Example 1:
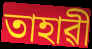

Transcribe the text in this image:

তাহাৱী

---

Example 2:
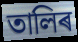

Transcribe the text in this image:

তালিৰ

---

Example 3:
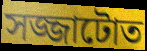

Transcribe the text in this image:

সজ্জাটোত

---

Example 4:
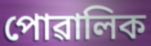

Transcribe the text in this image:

পোৱালিক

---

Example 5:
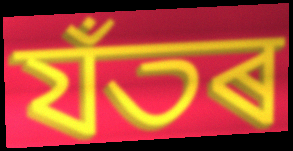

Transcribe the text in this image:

যঁতৰ